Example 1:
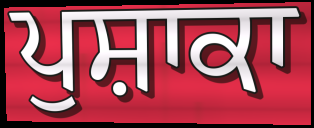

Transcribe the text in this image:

ਪੁਸ਼ਾਕਾ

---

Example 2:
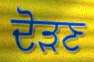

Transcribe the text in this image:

ਦੋੜਣ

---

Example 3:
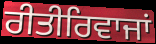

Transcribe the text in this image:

ਰੀਤੀਰਿਵਾਜਾਂ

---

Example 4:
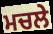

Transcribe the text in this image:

ਮਚਲੇ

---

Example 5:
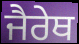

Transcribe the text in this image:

ਜੈਰੇਥ